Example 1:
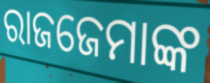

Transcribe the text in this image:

ରାଜଜେମାଙ୍କ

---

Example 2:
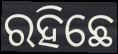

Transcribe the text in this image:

ରହିଛେ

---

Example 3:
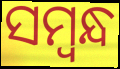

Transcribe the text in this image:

ସମ୍ୱନ୍ଧ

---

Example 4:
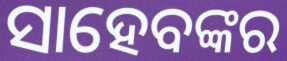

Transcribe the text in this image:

ସାହେବଙ୍କର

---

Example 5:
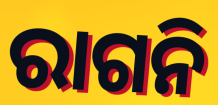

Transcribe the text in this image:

ରାଗନି